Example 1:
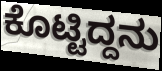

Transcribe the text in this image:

ಕೊಟ್ಟಿದ್ದನು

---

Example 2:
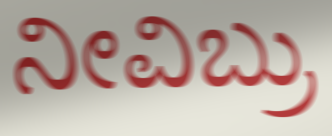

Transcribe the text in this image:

ನೀವಿಬ್ರು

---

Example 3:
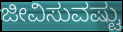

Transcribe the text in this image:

ಜೀವಿಸುವಷ್ಟು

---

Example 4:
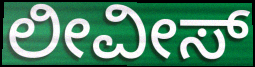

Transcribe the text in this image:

ಲೀವೀಸ್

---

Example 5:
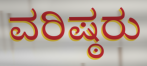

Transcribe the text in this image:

ವರಿಷ್ಠರು